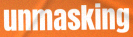
unmasking